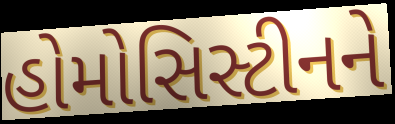
હોમોસિસ્ટીનને